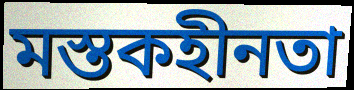
মস্তকহীনতা